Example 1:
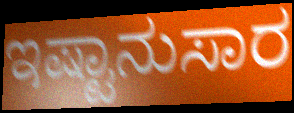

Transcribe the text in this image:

ಇಷ್ಟಾನುಸಾರ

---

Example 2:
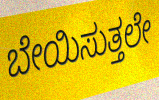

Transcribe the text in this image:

ಬೇಯಿಸುತ್ತಲೇ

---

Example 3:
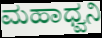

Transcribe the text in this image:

ಮಹಾಧ್ವನಿ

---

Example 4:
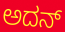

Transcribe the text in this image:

ಅದನ್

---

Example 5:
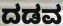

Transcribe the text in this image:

ದಡವ